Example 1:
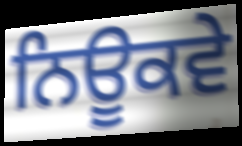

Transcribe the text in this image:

ਨਿਊਕਵੇ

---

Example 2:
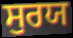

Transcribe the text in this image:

ਸੁਰਯ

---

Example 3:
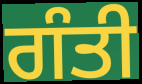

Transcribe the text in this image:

ਗੰਤੀ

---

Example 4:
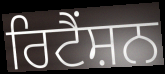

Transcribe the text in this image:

ਰਿਟੈਂਸ਼ਨ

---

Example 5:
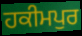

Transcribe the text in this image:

ਹਕੀਮਪੁਰ